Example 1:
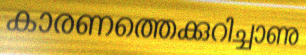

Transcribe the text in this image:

കാരണത്തെക്കുറിച്ചാണു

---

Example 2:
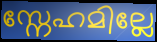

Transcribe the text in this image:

സ്നേഹമില്ലേ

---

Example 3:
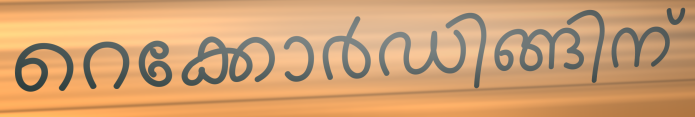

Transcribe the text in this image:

റെക്കോർഡിങ്ങിന്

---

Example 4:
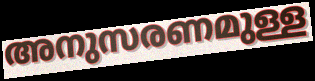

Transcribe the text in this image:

അനുസരണമുള്ള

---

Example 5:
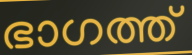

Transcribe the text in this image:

ഭാഗത്ത്